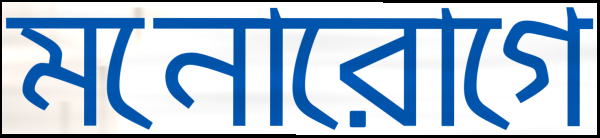
মনোরোগে